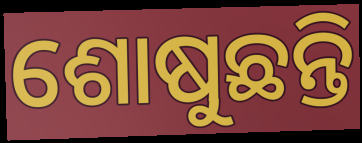
ଶୋଷୁଛନ୍ତି